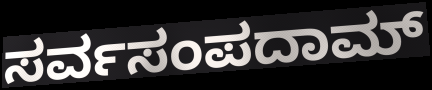
ಸರ್ವಸಂಪದಾಮ್